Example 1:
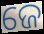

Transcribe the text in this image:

ଜେ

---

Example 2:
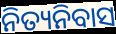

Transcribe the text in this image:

ନିତ୍ୟନିବାସ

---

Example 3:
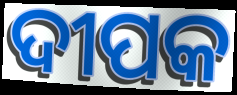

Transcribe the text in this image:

ଦୀପକ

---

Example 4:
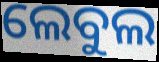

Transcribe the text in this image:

ଲେବୁଲ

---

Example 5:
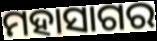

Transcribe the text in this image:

ମହାସାଗର